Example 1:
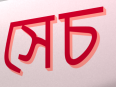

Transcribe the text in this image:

সেচ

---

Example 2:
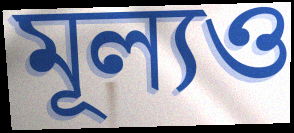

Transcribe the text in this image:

মূল্যও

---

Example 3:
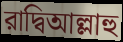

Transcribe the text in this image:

রাদ্বিআল্লাহু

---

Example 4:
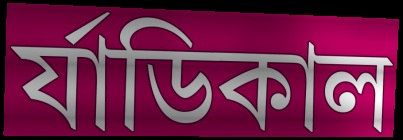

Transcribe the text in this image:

র্যাডিকাল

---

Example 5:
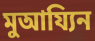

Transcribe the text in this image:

মুআয্যিন